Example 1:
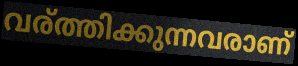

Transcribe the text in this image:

വര്ത്തിക്കുന്നവരാണ്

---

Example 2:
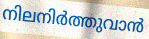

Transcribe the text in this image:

നിലനിർത്തുവാൻ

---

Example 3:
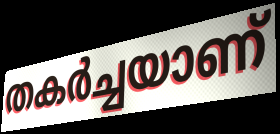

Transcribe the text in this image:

തകർച്ചയാണ്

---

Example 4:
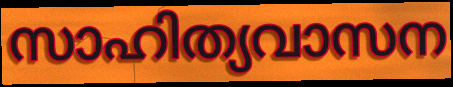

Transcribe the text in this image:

സാഹിത്യവാസന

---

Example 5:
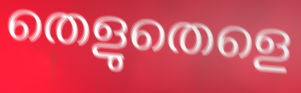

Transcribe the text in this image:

തെളുതെളെ